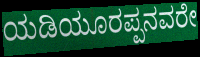
ಯಡಿಯೂರಪ್ಪನವರೇ